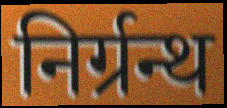
निर्ग्रन्थ